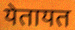
येतायत